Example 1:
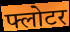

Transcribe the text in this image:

फ्लोटर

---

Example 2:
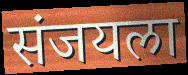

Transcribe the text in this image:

संजयला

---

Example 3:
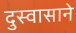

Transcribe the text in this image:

दुस्वासाने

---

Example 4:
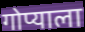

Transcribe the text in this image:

गोप्याला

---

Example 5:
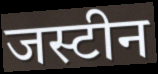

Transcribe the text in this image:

जस्टीन